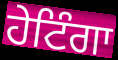
ਹੇਟਿੰਗਾ